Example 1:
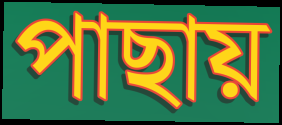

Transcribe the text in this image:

পাছায়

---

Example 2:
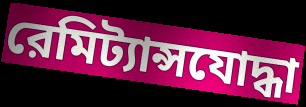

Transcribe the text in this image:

রেমিট্যান্সযোদ্ধা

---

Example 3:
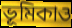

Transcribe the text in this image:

ভূমিকাও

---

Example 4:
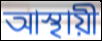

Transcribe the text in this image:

আস্থায়ী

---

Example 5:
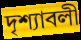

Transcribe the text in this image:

দৃশ্যাবলী